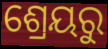
ଶ୍ରେୟରୁ